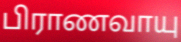
பிராணவாயு